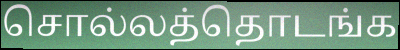
சொல்லத்தொடங்க